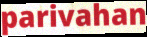
parivahan